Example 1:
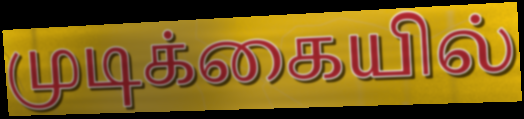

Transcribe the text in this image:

முடிக்கையில்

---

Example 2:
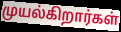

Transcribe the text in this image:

முயல்கிறார்கள்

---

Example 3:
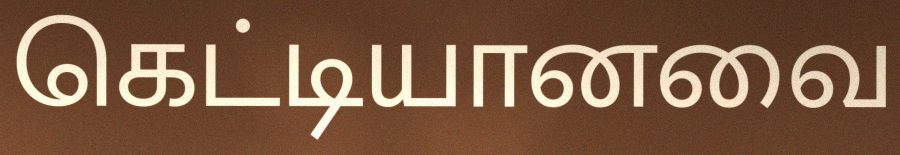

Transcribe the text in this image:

கெட்டியானவை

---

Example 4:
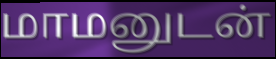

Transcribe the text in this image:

மாமனுடன்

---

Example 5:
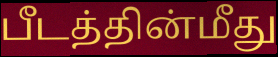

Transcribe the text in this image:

பீடத்தின்மீது